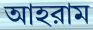
আহরাম